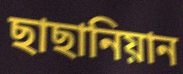
ছাছানিয়ান